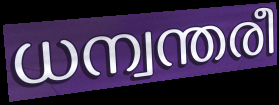
ധന്വന്തരീ